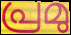
പ്രമു